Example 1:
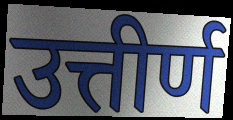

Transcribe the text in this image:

उत्तीर्ण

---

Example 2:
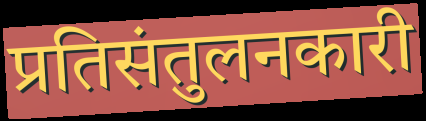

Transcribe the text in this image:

प्रतिसंतुलनकारी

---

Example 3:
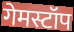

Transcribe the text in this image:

गेमस्टॉप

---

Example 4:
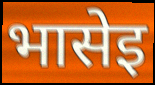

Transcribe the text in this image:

भासेइ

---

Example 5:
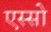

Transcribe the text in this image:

एस्सो